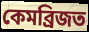
কেমব্ৰিজত